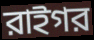
রাইগর